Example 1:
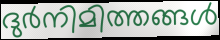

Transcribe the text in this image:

ദുർനിമിത്തങ്ങൾ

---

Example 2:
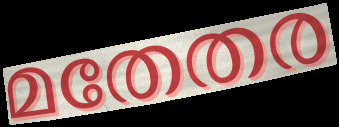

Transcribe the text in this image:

മതേതര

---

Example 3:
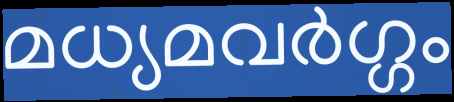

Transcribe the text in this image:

മധ്യമവർഗ്ഗം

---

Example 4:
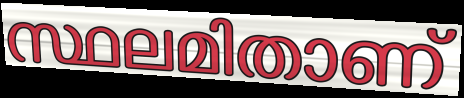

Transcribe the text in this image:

സ്ഥലമിതാണ്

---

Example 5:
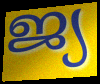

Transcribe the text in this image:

ജ്യ